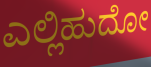
ಎಲ್ಲಿಹುದೋ